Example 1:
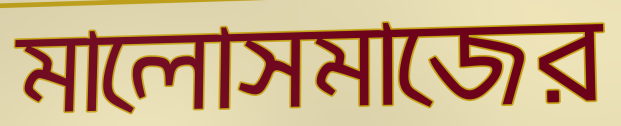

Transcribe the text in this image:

মালোসমাজের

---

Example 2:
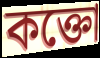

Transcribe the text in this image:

কক্তো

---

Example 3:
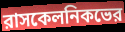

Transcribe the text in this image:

রাসকেলনিকভের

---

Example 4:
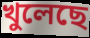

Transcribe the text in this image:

খুলেছে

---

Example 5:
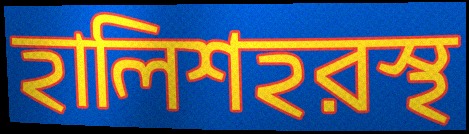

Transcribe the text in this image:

হালিশহরস্থ